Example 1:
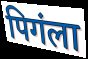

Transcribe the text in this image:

पिगंला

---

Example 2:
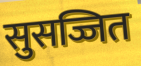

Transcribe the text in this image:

सुसज्जित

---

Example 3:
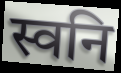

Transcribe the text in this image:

स्वनि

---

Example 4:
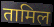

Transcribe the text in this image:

तामिल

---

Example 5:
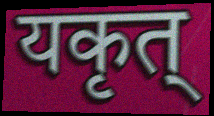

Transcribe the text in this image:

यकृत्